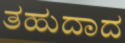
ತಹುದಾದ